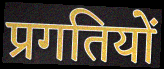
प्रगतियों